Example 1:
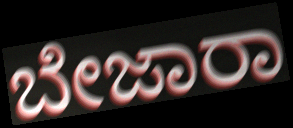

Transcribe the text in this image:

ಬೇಜಾರಾ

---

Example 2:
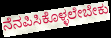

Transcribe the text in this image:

ನೆನಪಿಸಿಕೊಳ್ಳಲೇಬೇಕು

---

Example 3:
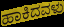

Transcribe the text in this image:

ಹಾಕಿದವಳು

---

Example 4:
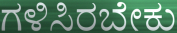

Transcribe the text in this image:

ಗಳಿಸಿರಬೇಕು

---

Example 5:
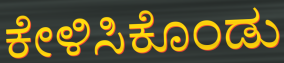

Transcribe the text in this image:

ಕೇಳಿಸಿಕೊಂಡು